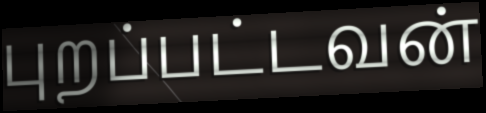
புறப்பட்டவன்